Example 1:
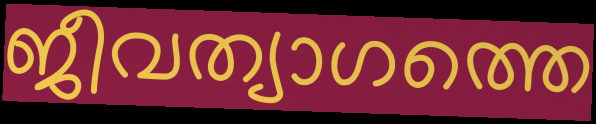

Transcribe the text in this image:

ജീവത്യാഗത്തെ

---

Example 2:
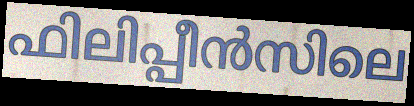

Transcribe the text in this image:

ഫിലിപ്പീൻസിലെ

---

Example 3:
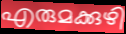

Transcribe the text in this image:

എരുമക്കുഴി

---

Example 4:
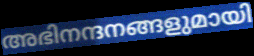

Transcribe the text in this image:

അഭിനന്ദനങ്ങളുമായി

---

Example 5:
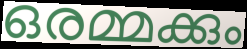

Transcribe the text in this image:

ഒരമ്മക്കും